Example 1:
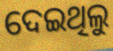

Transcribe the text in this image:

ଦେଇଥିଲୁ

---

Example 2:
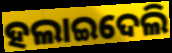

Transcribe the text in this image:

ହଲାଇଦେଲି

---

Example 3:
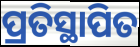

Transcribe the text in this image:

ପ୍ରତିସ୍ଥାପିତ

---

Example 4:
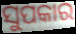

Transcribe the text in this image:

ସୁପକାର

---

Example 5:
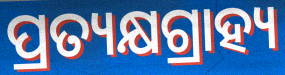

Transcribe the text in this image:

ପ୍ରତ୍ୟକ୍ଷଗ୍ରାହ୍ୟ